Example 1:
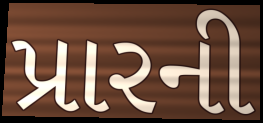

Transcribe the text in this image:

પ્રારની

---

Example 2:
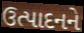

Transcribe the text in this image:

ઉત્પાદનને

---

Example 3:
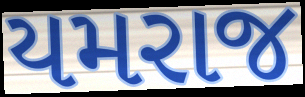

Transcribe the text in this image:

યમરાજ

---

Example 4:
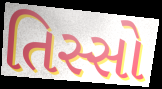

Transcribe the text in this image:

તિસ્સો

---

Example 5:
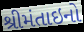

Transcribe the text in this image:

શ્રીમંતાઇનો